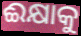
ଈକ୍ଷାକୁ